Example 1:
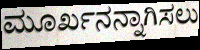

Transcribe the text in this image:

ಮೂರ್ಖನನ್ನಾಗಿಸಲು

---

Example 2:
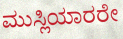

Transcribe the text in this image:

ಮುಸ್ಲಿಯಾರರೇ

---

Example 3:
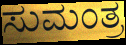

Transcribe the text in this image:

ಸುಮಂತ್ರ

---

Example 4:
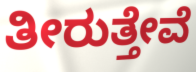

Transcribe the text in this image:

ತೀರುತ್ತೇವೆ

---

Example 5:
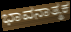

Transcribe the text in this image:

ಭಾವನಾತ್ಮಕ